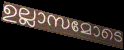
ഉല്ലാസമോടെ